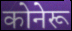
कोनेरू